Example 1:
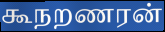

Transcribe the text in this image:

கூநறணரன்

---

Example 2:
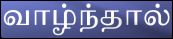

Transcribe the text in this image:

வாழ்ந்தால்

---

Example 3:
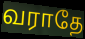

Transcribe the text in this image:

வராதே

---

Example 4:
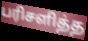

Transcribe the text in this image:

பரிசளித்த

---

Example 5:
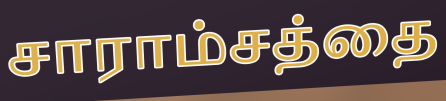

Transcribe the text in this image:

சாராம்சத்தை